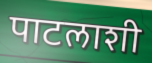
पाटलाशी